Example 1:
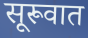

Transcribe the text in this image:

सूरूवात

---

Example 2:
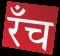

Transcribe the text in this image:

रँच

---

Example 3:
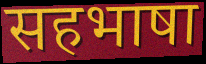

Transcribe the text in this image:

सहभाषा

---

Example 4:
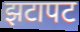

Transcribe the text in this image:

झटापट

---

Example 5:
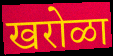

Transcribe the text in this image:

खरोळा